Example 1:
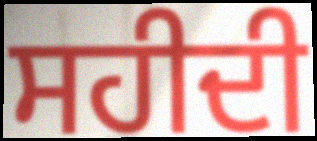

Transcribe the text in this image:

ਸਹੀਦੀ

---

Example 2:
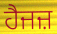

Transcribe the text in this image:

ਹੈਜਜ਼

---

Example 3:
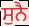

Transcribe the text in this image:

ਸੁਨੈ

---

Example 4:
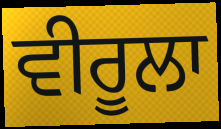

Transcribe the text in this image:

ਵੀਰੂਲਾ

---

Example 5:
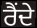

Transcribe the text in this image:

ਰੈਂਦੇ